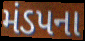
મંડપના